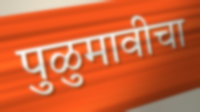
पुळुमावीचा